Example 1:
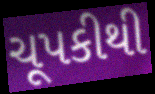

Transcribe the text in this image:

ચૂપકીથી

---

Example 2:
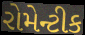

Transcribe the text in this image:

રોમેન્ટીક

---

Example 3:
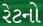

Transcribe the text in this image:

રેટનો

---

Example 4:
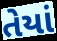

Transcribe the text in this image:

તેયાં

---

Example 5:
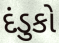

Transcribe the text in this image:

દંડુકો